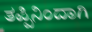
ತಪ್ಪಿನಿಂದಾಗಿ